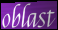
oblast